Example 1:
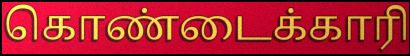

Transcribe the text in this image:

கொண்டைக்காரி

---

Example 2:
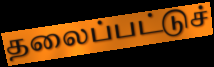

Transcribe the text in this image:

தலைப்பட்டுச்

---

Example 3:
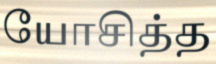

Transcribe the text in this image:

யோசித்த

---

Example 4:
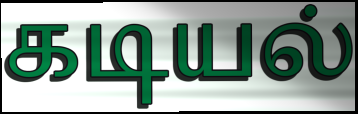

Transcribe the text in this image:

கடியல்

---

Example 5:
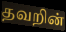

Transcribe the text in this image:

தவறின்